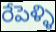
రేపెళ్ళి